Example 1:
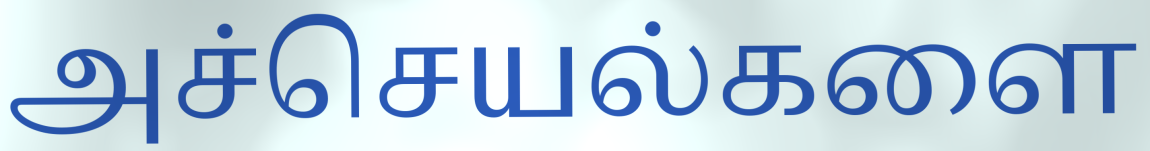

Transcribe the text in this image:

அச்செயல்களை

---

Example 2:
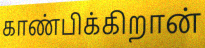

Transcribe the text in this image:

காண்பிக்கிறான்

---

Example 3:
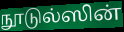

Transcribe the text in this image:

நூடுல்ஸின்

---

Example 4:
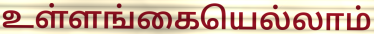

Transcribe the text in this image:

உள்ளங்கையெல்லாம்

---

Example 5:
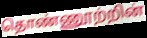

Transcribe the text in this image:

தொண்ணூற்றின்